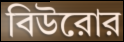
বিউরোর